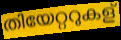
തിയേറ്ററുകള്